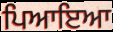
ਪਿਆਇਆ